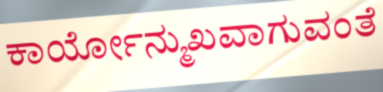
ಕಾರ್ಯೋನ್ಮುಖವಾಗುವಂತೆ